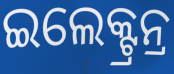
ଇଲେକ୍ଟ୍ରନ୍ର